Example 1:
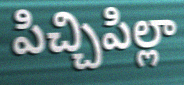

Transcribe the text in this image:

పిచ్చిపిల్లా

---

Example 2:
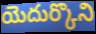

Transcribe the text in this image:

యెదుర్కొని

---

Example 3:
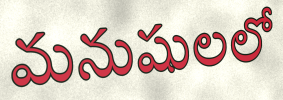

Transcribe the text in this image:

మనుషులలో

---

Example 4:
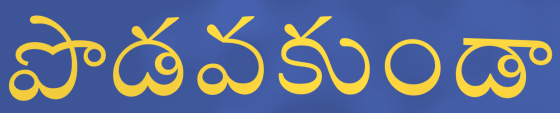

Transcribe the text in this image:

పొడవకుండా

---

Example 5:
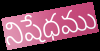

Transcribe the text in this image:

నిషేధము